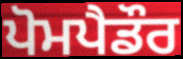
ਪੋਮਪੈਡੌਰ